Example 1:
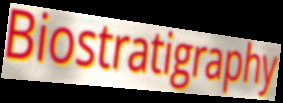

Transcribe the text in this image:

Biostratigraphy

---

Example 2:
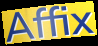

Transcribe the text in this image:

Affix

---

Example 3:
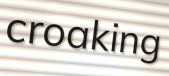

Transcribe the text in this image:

croaking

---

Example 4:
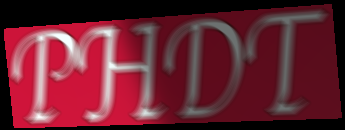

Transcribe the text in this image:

PHDT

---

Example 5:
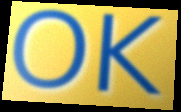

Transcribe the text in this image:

OK